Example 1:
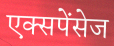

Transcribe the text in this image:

एक्सपेंसेज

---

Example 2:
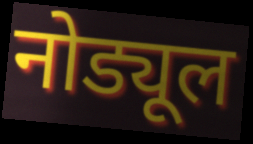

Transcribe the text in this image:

नोड्यूल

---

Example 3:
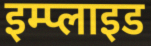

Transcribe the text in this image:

इम्प्लाइड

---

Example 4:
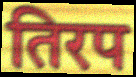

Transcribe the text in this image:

तिरप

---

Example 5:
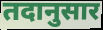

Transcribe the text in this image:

तदानुसार